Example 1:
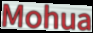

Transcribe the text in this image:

Mohua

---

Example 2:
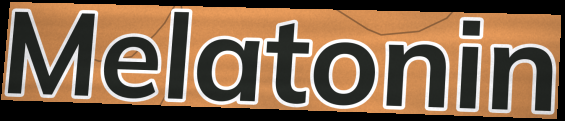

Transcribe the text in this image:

Melatonin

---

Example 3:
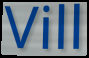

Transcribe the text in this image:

Vill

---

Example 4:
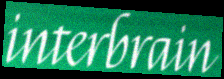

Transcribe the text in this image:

interbrain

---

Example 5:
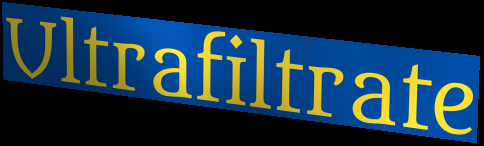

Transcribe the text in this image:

Ultrafiltrate